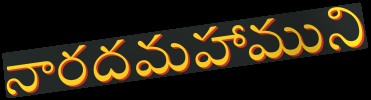
నారదమహాముని